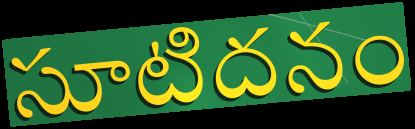
సూటిదనం